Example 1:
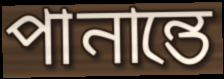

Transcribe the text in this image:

পানান্তে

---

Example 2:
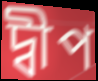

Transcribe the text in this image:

দ্বীপ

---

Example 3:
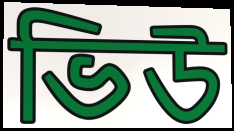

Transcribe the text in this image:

ভিউ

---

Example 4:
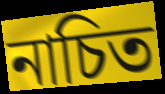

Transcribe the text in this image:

নাচিত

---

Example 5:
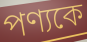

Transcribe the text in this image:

পণ্যকে